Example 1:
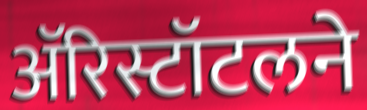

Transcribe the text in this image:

ॲरिस्टॉटलने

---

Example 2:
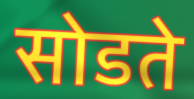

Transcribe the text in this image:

सोडते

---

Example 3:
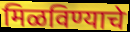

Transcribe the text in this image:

मिळविण्याचे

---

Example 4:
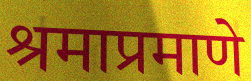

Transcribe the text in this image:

श्रमाप्रमाणे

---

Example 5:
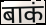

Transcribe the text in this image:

बाकं